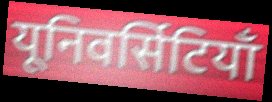
यूनिवर्सिटियाँ